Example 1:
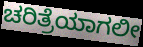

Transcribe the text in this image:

ಚರಿತ್ರೆಯಾಗಲೀ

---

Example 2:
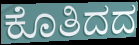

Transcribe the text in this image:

ಕೊತಿದದ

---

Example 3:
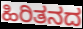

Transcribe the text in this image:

ಹಿರಿತನದ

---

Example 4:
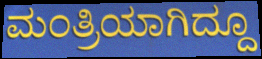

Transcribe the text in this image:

ಮಂತ್ರಿಯಾಗಿದ್ದೂ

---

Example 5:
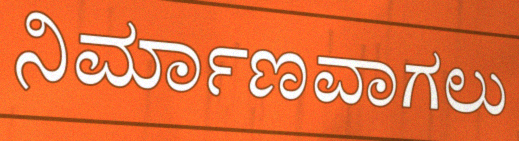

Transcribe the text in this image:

ನಿರ್ಮಾಣವಾಗಲು